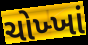
ચોખ્ખાં